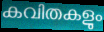
കവിതകളും